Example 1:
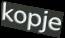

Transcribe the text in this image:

kopje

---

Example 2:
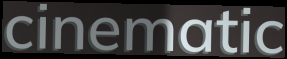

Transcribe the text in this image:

cinematic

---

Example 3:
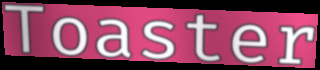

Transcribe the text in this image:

Toaster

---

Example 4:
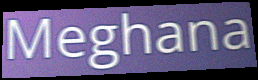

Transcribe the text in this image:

Meghana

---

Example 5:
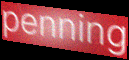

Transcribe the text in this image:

penning